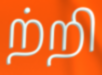
ற்றி